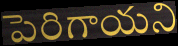
పెరిగాయని